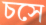
চসে